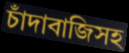
চাঁদাবাজিসহ